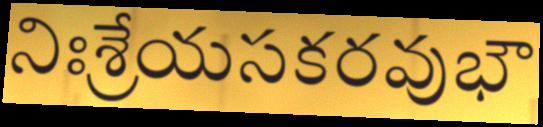
నిఃశ్రేయసకరవుభౌ